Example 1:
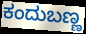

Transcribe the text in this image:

ಕಂದುಬಣ್ಣ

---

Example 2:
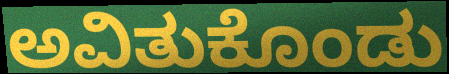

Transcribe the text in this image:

ಅವಿತುಕೊಂಡು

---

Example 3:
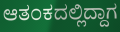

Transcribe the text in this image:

ಆತಂಕದಲ್ಲಿದ್ದಾಗ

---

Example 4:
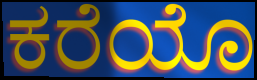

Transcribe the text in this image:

ಕರೆಯೊ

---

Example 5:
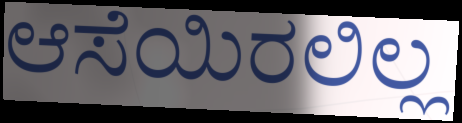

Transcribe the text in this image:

ಆಸೆಯಿರಲಿಲ್ಲ